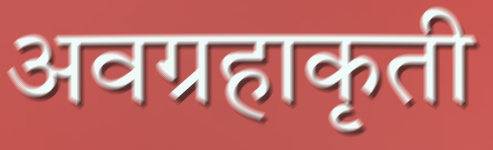
अवग्रहाकृती